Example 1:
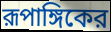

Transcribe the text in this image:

রূপাঙ্গিকের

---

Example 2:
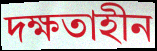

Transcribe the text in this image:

দক্ষতাহীন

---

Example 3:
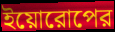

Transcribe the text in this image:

ইয়োরোপের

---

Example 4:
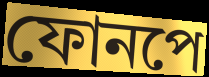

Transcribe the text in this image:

ফোনপে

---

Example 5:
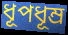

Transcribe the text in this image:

ধূপধূম্র